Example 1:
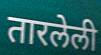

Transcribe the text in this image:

तारलेली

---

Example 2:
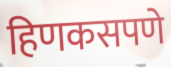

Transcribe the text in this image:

हिणकसपणे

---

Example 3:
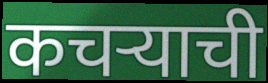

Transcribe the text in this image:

कचर्‍याची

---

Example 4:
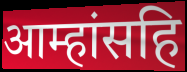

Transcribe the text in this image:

आम्हांसहि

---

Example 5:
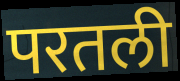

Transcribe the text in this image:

परतली